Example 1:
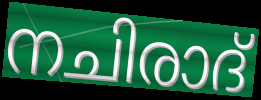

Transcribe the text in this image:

നചിരാദ്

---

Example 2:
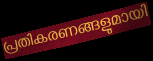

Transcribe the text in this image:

പ്രതികരണങ്ങളുമായി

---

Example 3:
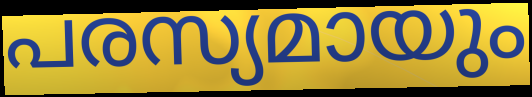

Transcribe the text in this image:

പരസ്യമായും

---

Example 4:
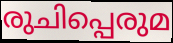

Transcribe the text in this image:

രുചിപ്പെരുമ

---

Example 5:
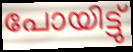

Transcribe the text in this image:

പോയിട്ടു്